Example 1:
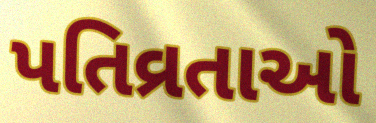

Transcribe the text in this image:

પતિવ્રતાઓ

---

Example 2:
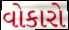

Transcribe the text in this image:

વોકારો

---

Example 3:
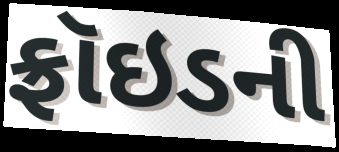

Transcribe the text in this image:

ફ્રૉઇડની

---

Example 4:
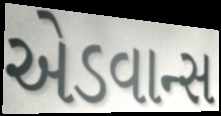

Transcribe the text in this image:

એડવાન્સ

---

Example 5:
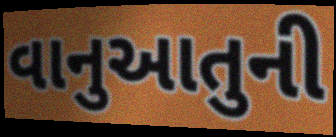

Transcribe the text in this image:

વાનુઆતુની